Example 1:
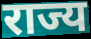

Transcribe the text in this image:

राज्य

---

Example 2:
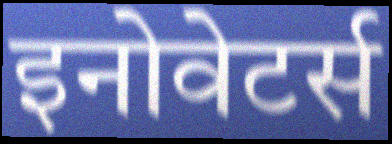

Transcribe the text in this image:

इनोवेटर्स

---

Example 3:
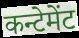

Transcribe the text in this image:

कन्टेमेंट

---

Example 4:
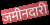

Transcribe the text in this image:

जमीनदारी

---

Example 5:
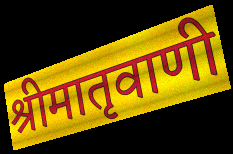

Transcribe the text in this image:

श्रीमातृवाणी